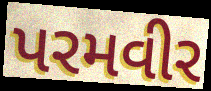
પરમવીર